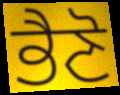
ਭੈਣੋ